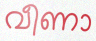
വീണാ